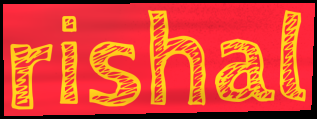
rishal